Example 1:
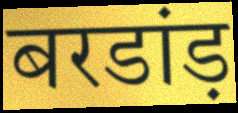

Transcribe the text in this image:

बरडांड़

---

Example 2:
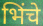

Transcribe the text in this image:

भिंचे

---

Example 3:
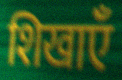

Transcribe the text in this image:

शिखाएँ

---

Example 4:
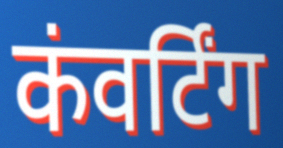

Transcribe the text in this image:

कंवर्टिंग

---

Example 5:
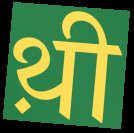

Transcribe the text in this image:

थ़ी